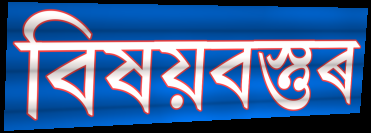
বিষয়বস্তুৰ